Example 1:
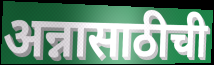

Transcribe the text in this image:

अन्नासाठीची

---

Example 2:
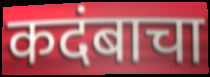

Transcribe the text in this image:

कदंबाचा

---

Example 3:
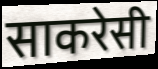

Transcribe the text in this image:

साकरेसी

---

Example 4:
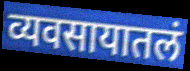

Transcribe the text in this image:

व्यवसायातलं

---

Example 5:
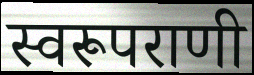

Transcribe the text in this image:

स्वरूपराणी